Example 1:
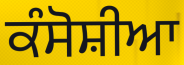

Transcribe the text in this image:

ਕੰਸੋਸ਼ੀਆ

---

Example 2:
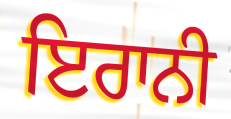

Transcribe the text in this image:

ਇਰਾਨੀ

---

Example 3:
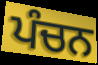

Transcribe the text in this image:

ਪੰਚਨ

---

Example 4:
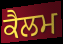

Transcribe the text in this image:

ਕੈਲਮ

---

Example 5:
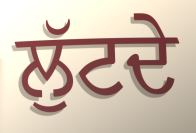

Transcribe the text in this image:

ਲੁੱਟਦੇ